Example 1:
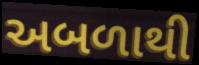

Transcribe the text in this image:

અબળાથી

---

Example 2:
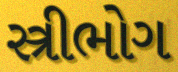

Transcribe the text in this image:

સ્ત્રીભોગ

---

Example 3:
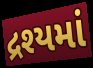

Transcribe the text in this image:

દ્રશ્યમાં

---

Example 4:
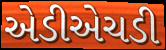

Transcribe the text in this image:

એડીએચડી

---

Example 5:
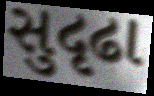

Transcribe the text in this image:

સુદૃઢા